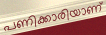
പണിക്കാരിയാണ്